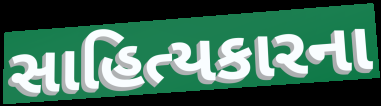
સાહિત્યકારના